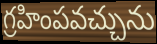
గ్రహింపవచ్చును